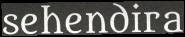
sehendira